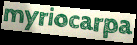
myriocarpa